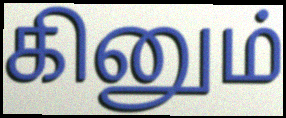
கினும்